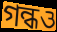
গন্ধও